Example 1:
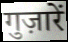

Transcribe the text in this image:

गुज़ारें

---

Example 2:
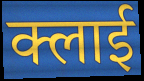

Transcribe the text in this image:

क्लाई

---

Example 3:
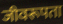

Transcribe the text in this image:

जीवरूपता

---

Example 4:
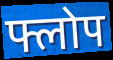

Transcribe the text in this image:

फ्लोप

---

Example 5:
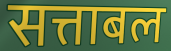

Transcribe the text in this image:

सत्ताबल